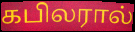
கபிலரால்